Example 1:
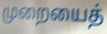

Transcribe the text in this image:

முறையைத்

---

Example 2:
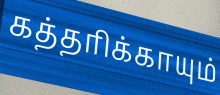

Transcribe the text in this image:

கத்தரிக்காயும்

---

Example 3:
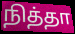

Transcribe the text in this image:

நித்தா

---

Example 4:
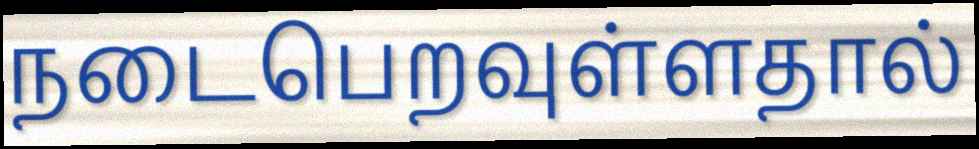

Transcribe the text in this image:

நடைபெறவுள்ளதால்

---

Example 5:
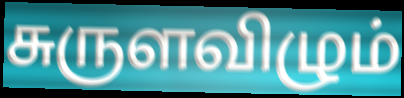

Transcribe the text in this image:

சுருளவிழும்